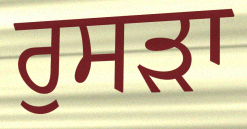
ਰੁਸੜਾ